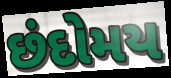
છંદોમય